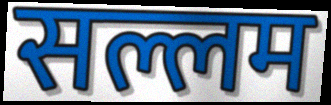
सल्लम